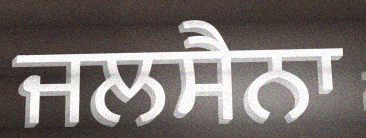
ਜਲਸੈਨਾ